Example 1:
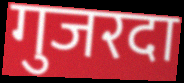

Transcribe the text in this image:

गुजरदा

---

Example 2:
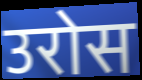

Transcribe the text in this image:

उरोस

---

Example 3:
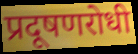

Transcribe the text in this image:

प्रदूषणरोधी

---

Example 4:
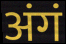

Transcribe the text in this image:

अंगं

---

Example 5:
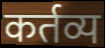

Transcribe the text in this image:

कर्तव्य